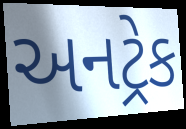
અનટ્રેક